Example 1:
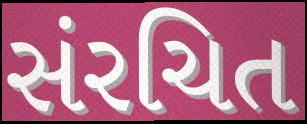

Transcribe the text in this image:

સંરચિત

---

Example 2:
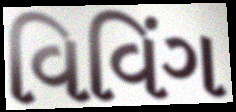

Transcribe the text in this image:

વિવિંગ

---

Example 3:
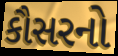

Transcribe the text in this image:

કૌસરનો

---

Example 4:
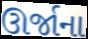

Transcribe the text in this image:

ઊર્જાના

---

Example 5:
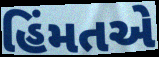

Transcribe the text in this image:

હિંમતએ